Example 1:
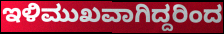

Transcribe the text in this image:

ಇಳಿಮುಖವಾಗಿದ್ದರಿಂದ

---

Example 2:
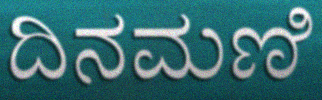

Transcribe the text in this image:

ದಿನಮಣಿ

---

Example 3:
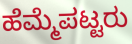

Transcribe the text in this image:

ಹೆಮ್ಮೆಪಟ್ಟರು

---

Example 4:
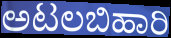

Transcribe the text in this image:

ಅಟಲಬಿಹಾರಿ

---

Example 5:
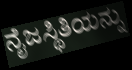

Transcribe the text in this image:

ನೈಜಸ್ಥಿತಿಯನ್ನು